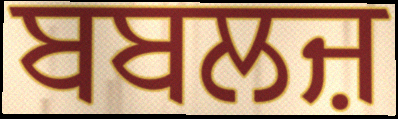
ਬਬਲਜ਼